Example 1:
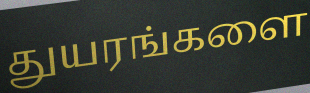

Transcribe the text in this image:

துயரங்களை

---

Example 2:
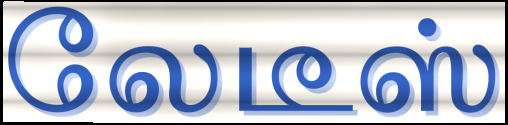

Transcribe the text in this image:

லேடீஸ்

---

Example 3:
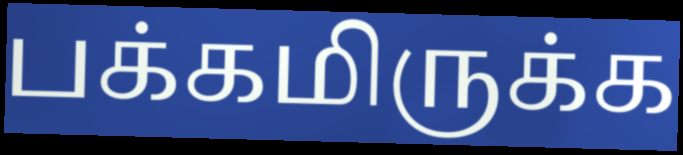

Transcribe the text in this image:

பக்கமிருக்க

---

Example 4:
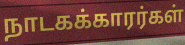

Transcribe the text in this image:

நாடகக்காரர்கள்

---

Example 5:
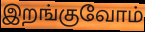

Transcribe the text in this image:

இறங்குவோம்